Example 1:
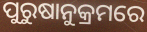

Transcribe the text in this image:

ପୁରୁଷାନୁକ୍ରମରେ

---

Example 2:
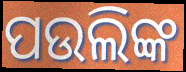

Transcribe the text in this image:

ପଉଲିଙ୍କ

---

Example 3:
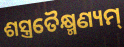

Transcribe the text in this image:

ଶସ୍ତ୍ରତୈକ୍ଷ୍ମଣ୍ୟମ୍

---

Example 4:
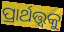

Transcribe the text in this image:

ପ୍ରାର୍ଥତ୍ତ୍ୱକୁ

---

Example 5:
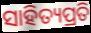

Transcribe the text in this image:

ସାହିତ୍ୟପ୍ରତି